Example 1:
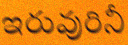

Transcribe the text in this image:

ఇరువురినీ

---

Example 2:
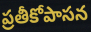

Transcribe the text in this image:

ప్రతీకోపాసన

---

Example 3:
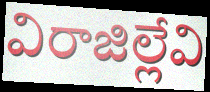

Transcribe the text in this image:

విరాజిల్లేవి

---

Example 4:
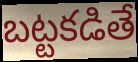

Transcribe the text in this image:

బట్టకడితే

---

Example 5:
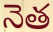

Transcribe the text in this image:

నెత